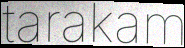
tarakam